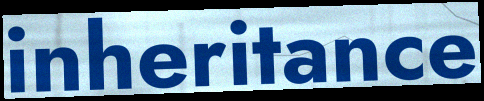
inheritance